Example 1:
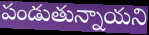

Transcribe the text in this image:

పండుతున్నాయని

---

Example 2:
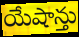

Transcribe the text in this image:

యేషాన్తు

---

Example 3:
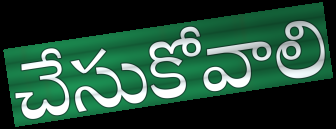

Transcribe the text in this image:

చేసుకోవాలి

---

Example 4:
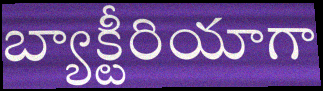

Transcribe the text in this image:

బ్యాక్టీరియాగా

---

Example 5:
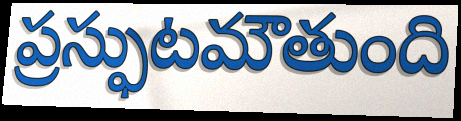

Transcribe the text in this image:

ప్రస్ఫుటమౌతుంది